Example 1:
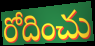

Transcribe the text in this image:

రోదించు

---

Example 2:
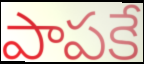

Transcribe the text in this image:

పాపకే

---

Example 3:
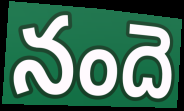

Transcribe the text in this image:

నందె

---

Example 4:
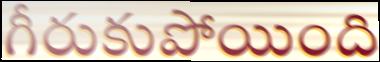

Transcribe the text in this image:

గీరుకుపోయింది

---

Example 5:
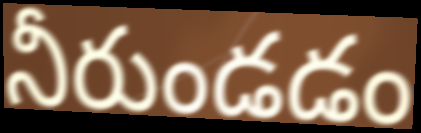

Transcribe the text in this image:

నీరుండడం